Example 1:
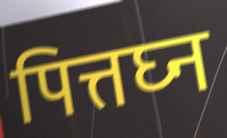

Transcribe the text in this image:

पित्तघ्न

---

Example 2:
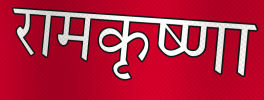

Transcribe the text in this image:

रामकृष्णा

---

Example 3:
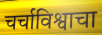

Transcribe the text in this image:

चर्चाविश्वाचा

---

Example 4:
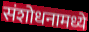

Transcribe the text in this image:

संशोधनामध्ये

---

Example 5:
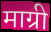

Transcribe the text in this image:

माग्री